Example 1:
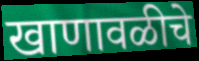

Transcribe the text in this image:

खाणावळीचे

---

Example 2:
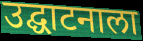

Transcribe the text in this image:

उद्घाटनाला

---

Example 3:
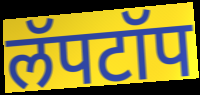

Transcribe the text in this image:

लॅपटॉप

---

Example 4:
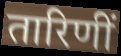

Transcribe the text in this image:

तारिणीं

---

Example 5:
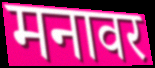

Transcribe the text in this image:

मनावर